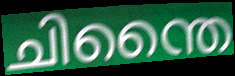
ചിന്തൈ